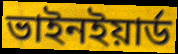
ভাইনইয়ার্ড